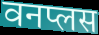
वनप्लस